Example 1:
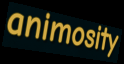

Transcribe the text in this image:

animosity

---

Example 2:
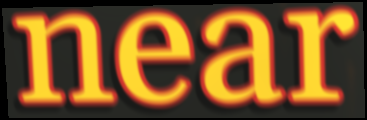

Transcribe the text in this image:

near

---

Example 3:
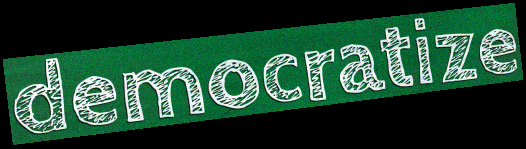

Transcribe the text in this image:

democratize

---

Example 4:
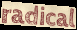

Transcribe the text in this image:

radical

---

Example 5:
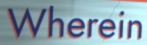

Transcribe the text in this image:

Wherein